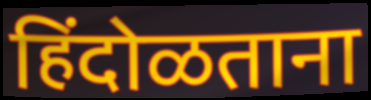
हिंदोळताना